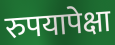
रुपयापेक्षा